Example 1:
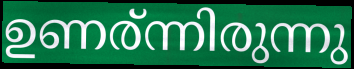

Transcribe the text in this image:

ഉണര്ന്നിരുന്നു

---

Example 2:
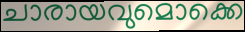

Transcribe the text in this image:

ചാരായവുമൊക്കെ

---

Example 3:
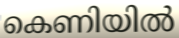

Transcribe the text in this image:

കെണിയിൽ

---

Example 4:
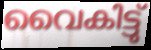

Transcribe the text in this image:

വൈകിട്ടു്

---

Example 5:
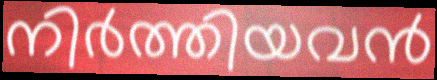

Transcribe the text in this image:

നിർത്തിയവൻ